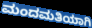
ಮಂದಮತಿಯಾಗಿ